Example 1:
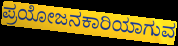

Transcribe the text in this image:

ಪ್ರಯೋಜನಕಾರಿಯಾಗುವ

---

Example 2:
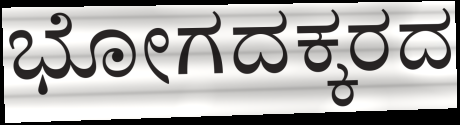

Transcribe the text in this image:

ಭೋಗದಕ್ಕರದ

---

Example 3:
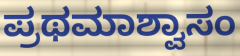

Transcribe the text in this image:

ಪ್ರಥಮಾಶ್ವಾಸಂ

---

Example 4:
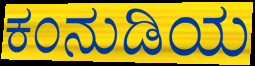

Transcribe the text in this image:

ಕಂನುಡಿಯ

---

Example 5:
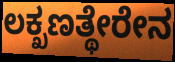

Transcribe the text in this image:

ಲಕ್ಖಣತ್ಥೇರೇನ